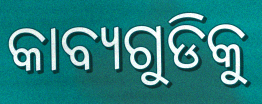
କାବ୍ୟଗୁଡିକୁ